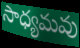
సాధ్యమవు